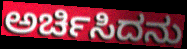
ಅರ್ಚಿಸಿದನು